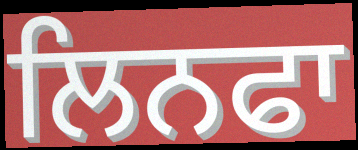
ਲਿਨਫਾ